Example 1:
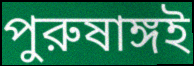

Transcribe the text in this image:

পুরুষাঙ্গই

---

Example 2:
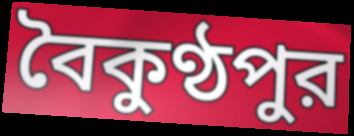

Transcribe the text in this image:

বৈকুণ্ঠপুর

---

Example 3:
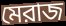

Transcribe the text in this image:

মেরাজ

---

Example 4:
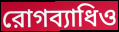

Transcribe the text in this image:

রোগব্যাধিও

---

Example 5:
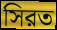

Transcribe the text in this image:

সিরত